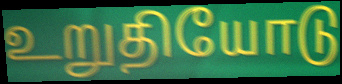
உறுதியோடு